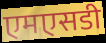
एमएसडी